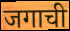
जगाची